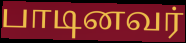
பாடினவர்